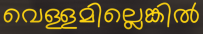
വെള്ളമില്ലെങ്കിൽ